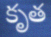
కృత